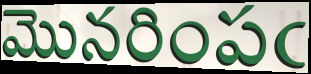
మొనరింపఁ